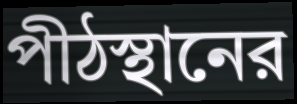
পীঠস্থানের